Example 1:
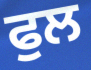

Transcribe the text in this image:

ਫੁਲ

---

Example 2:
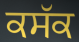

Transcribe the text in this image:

ਕਸੱਕ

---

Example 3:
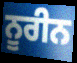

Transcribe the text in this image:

ਨੂਰੀਨ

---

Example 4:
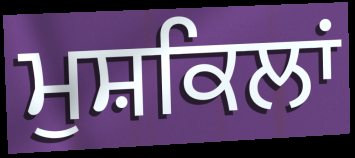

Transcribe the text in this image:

ਮੁਸ਼ਕਿਲਾਂ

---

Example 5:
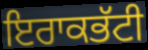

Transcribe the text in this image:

ਇਰਾਕਭੱਟੀ